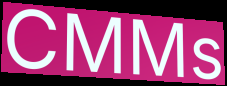
CMMs